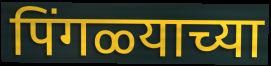
पिंगळ्याच्या